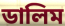
ডালিম